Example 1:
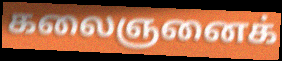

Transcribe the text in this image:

கலைஞனைக்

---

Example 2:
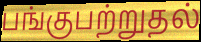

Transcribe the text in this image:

பங்குபற்றுதல்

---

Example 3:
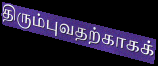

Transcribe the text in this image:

திரும்புவதற்காகக்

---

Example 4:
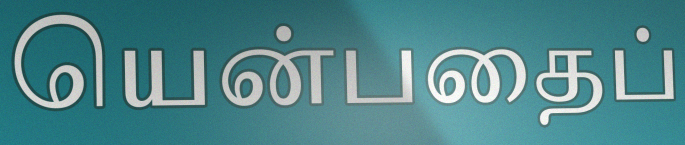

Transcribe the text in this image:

யென்பதைப்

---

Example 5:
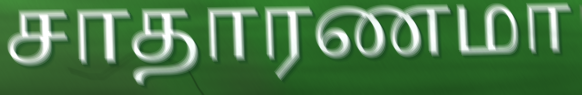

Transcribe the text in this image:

சாதாரணமா